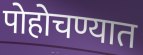
पोहोचण्यात